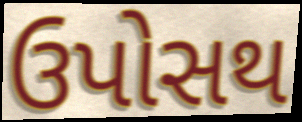
ઉપોસથ